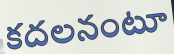
కదలనంటూ